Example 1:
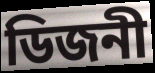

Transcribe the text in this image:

ডিজনী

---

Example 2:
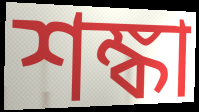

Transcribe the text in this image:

শঙ্কা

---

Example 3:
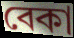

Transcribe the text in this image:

বেকা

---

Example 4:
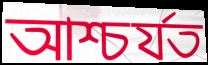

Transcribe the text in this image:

আশ্চৰ্যত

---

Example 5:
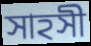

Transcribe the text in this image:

সাহসী